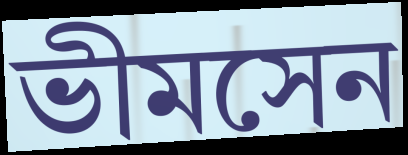
ভীমসেন